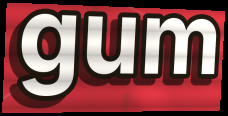
gum